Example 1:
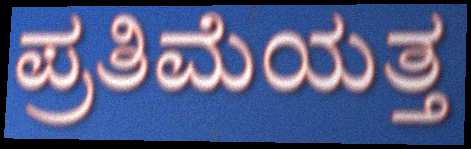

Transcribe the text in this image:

ಪ್ರತಿಮೆಯತ್ತ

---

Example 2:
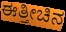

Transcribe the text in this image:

ಈತ್ತೀಚಿನ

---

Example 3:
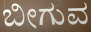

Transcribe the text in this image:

ಬೀಗುವ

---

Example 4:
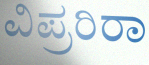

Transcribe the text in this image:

ವಿಪ್ರರಿರಾ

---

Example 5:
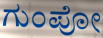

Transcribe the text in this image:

ಗುಂಪೋ